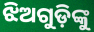
ଝିଅଗୁଡ଼ିଙ୍କୁ